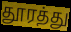
தூரத்து